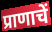
प्राणाचें